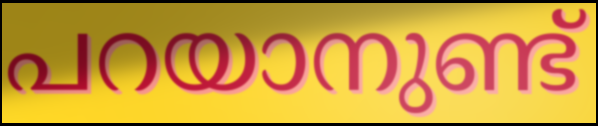
പറയാനുണ്ട്